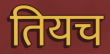
तियच